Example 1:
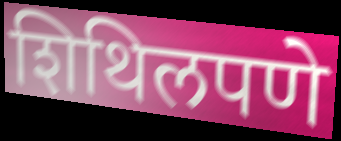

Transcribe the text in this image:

शिथिलपणे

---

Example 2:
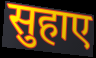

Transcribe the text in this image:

सुहाए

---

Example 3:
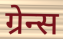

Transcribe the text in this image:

ग्रेन्स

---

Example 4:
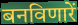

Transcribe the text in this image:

बनविणारें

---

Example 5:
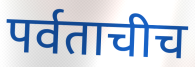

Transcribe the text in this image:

पर्वताचीच